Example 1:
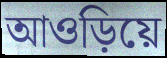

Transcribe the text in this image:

আওড়িয়ে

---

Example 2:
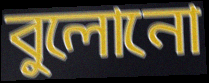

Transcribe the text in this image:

বুলোনো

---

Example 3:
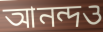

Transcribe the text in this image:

আনন্দও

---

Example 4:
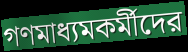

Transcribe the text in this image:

গণমাধ্যমকর্মীদের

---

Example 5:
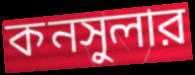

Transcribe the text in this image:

কনসুলার